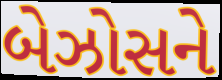
બેઝોસને